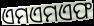
ଏମଏମଏଫ